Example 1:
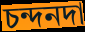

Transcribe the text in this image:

চন্দনদা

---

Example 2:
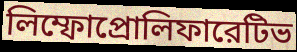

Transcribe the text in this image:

লিম্ফোপ্রোলিফারেটিভ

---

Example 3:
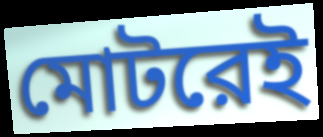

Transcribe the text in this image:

মোটরেই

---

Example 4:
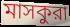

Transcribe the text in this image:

মাসকুরা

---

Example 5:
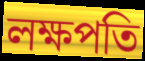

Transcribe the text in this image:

লক্ষপতি